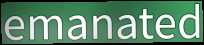
emanated